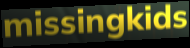
missingkids